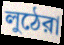
লুঠেরা